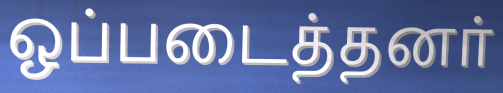
ஒப்படைத்தனர்